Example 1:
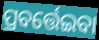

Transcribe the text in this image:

ପ୍ରବର୍ତ୍ତେଇବା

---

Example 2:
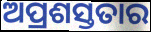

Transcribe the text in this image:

ଅପ୍ରଶସ୍ତତାର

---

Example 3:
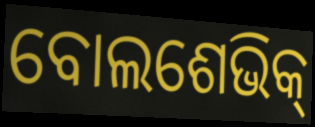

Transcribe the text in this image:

ବୋଲଶେଭିକ୍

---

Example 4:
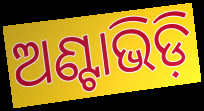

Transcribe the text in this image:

ଅଣ୍ଟାଭିଡ଼ି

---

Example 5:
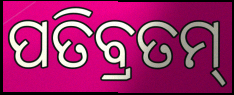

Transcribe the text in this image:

ପତିବ୍ରତମ୍